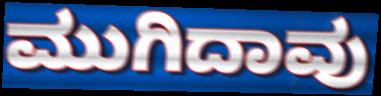
ಮುಗಿದಾವು